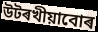
উটৰখীয়াবোৰ